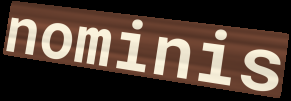
nominis